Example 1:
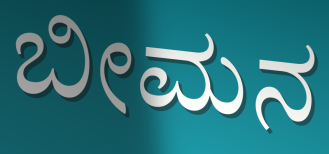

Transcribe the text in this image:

ಬೀಮನ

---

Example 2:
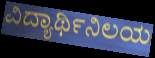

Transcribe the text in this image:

ವಿದ್ಯಾರ್ಥಿನಿಲಯ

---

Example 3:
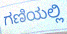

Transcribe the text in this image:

ಗಣಿಯಲ್ಲಿ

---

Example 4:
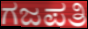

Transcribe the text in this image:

ಗಜಪತಿ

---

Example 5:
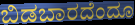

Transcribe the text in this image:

ಬಿಡಬಾರದೆಂದೂ